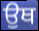
ਉਥ